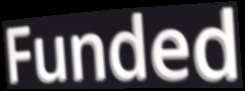
Funded